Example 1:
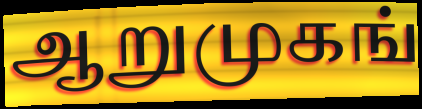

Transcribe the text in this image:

ஆறுமுகங்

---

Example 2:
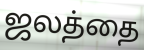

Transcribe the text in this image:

ஜலத்தை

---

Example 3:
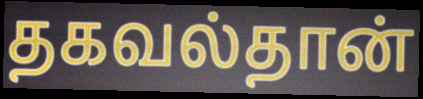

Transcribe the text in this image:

தகவல்தான்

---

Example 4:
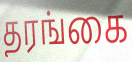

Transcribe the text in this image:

தரங்கை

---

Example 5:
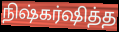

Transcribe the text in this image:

நிஷ்கர்ஷித்த